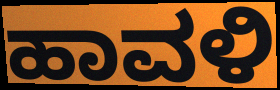
ಹಾವಳಿ